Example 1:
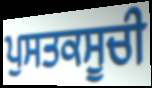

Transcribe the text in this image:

ਪੁਸਤਕਸੂਚੀ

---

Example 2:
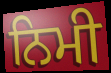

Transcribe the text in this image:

ਨਿਮੀ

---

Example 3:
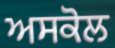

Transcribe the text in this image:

ਅਸਕੋਲ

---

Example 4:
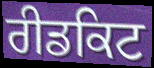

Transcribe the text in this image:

ਰੀਡਕਿਟ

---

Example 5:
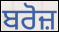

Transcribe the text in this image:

ਬਰੋਜ਼